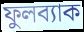
ফুলব্যাক